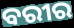
ବରୀର